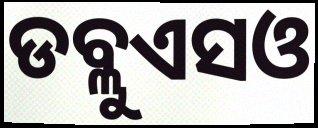
ଡବ୍ଲୁଏସଓ